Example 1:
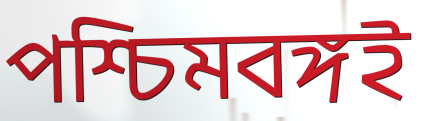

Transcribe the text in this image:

পশ্চিমবঙ্গই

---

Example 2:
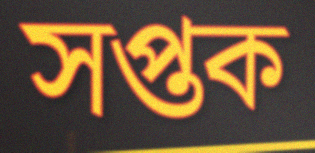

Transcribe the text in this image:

সপ্তক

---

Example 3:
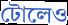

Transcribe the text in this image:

টোলেও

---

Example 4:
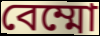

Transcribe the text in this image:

বেম্মো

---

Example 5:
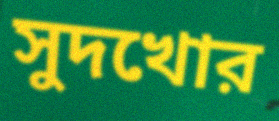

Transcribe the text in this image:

সুদখোর